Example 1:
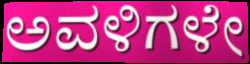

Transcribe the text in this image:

ಅವಳಿಗಳೇ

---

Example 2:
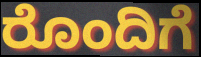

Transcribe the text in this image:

ರೊಂದಿಗೆ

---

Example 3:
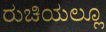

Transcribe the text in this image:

ರುಚಿಯಲ್ಲೂ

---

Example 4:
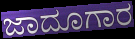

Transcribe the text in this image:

ಜಾದೂಗಾರ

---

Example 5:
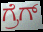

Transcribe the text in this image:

ಗ್ರೆಗ್